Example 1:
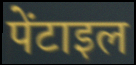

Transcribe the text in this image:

पेंटाइल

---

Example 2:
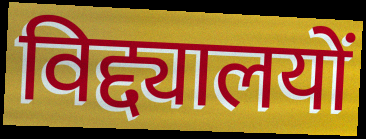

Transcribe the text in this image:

विद्द्यालयों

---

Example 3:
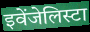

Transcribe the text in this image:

इवेंजेलिस्टा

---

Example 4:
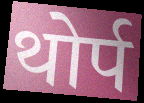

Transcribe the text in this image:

थोर्प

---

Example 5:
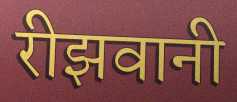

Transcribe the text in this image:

रीझवानी